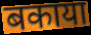
बकाया